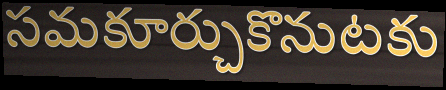
సమకూర్చుకొనుటకు